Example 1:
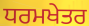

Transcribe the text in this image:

ਧਰਮਖੇਤਰ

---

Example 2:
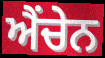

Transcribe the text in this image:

ਐਂਚੇਨ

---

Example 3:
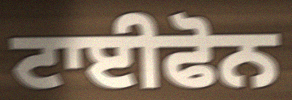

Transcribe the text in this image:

ਟਾਈਫੋਨ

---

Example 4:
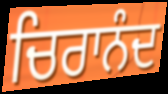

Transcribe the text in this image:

ਚਿਰਾਨੰਦ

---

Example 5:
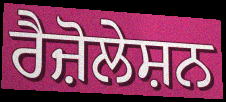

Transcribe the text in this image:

ਰੈਜ਼ੋਲੇਸ਼ਨ